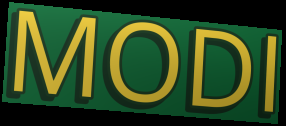
MODI